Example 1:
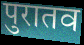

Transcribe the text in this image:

पुरातव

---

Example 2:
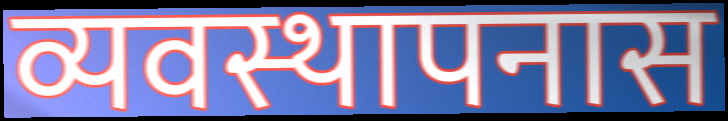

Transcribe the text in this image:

व्यवस्थापनास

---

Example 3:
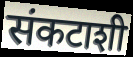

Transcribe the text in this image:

संकटाशी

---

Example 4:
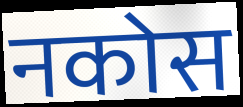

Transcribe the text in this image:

नकोस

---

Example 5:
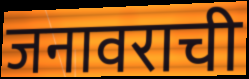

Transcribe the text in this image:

जनावराची